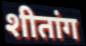
शीतांग